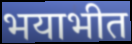
भयाभीत